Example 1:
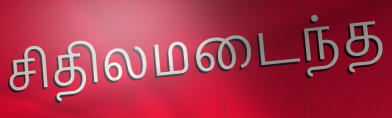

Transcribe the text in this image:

சிதிலமடைந்த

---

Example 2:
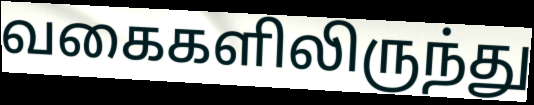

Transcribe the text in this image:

வகைகளிலிருந்து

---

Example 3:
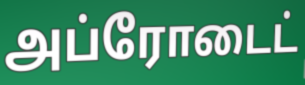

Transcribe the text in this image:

அப்ரோடைட்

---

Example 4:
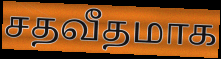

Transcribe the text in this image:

சதவீதமாக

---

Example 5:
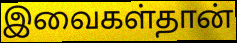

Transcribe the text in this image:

இவைகள்தான்